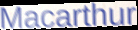
Macarthur